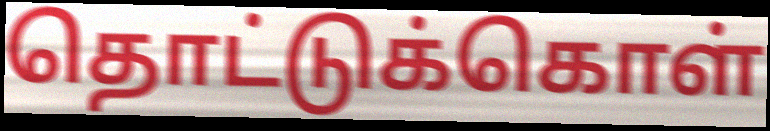
தொட்டுக்கொள்